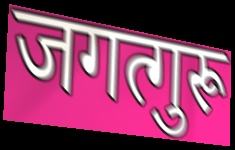
जगत्गुरू